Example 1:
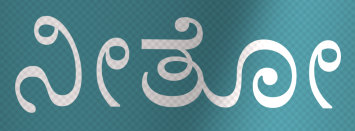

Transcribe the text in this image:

ನೀತೋ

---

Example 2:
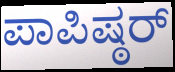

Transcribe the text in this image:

ಪಾಪಿಷ್ಠರ್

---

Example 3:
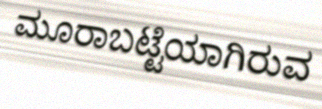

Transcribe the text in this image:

ಮೂರಾಬಟ್ಟೆಯಾಗಿರುವ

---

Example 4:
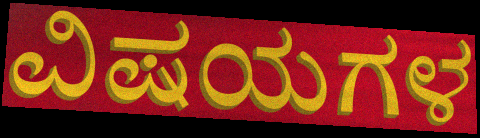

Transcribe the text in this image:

ವಿಷಯಗಳ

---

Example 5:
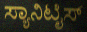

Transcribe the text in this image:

ಸ್ಯಾನಿಟೈಸ್